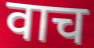
वाच